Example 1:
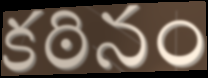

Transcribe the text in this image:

కఠినం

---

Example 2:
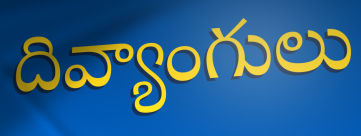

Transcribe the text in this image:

దివ్యాంగులు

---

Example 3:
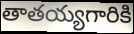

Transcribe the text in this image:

తాతయ్యగారికి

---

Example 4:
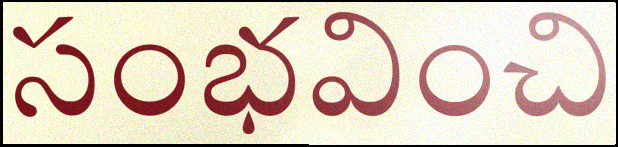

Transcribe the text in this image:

సంభవించి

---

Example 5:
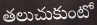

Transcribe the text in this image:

తలుచుకుంటో